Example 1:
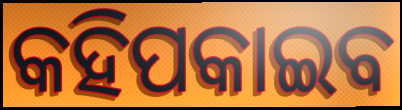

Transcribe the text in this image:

କହିପକାଇବ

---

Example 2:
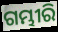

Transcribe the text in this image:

ଗମ୍ଭୀରି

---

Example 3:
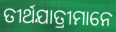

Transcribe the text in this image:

ତୀର୍ଥଯାତ୍ରୀମାନେ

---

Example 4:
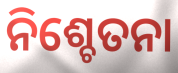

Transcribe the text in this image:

ନିଶ୍ଚେତନା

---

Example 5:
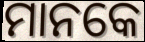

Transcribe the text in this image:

ମାନକେ